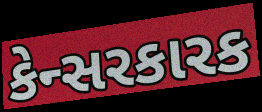
કેન્સરકારક